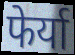
फेर्या